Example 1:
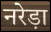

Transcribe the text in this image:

नरेड़ा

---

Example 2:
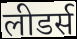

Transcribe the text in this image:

लीडर्स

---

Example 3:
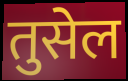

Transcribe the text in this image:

तुसेल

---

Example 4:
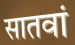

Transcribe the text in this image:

सातवां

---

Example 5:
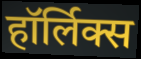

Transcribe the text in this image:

हॉर्लिक्स